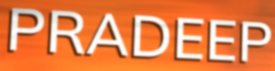
PRADEEP